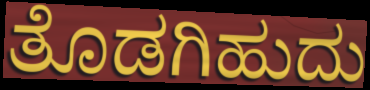
ತೊಡಗಿಹುದು